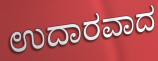
ಉದಾರವಾದ